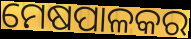
ମେଷପାଳକର